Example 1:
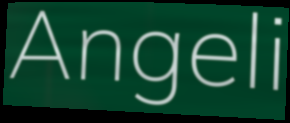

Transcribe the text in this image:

Angeli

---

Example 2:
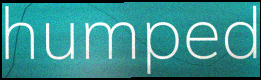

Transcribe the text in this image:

humped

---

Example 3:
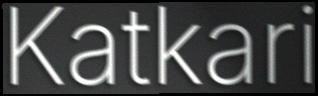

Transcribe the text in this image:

Katkari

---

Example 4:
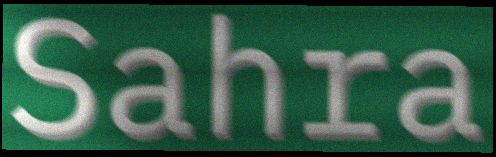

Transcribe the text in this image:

Sahra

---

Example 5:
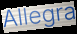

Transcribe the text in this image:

Allegra